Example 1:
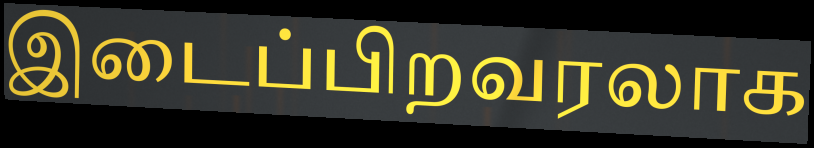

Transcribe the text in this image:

இடைப்பிறவரலாக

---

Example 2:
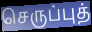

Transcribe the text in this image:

செருப்புத்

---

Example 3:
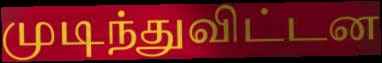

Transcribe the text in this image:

முடிந்துவிட்டன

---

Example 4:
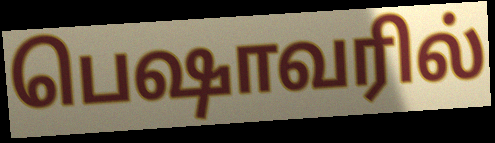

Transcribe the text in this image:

பெஷாவரில்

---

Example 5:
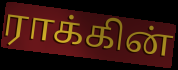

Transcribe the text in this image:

ராக்கின்